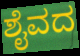
ಶೈವದ